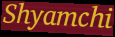
Shyamchi